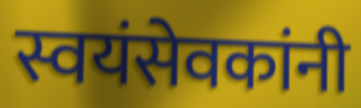
स्वयंसेवकांनी